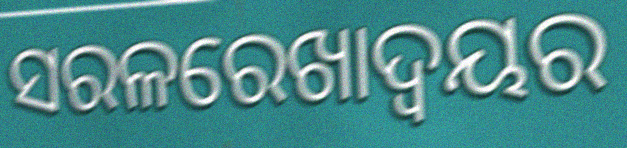
ସରଳରେଖାଦ୍ବୟର